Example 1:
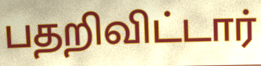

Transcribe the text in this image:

பதறிவிட்டார்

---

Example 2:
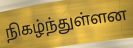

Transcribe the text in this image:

நிகழ்ந்துள்ளன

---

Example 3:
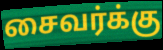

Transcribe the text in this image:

சைவர்க்கு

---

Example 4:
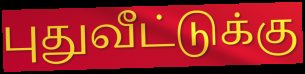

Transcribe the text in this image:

புதுவீட்டுக்கு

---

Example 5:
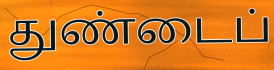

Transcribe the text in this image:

துண்டைப்